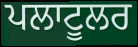
ਪਲਾਟੂਲਰ